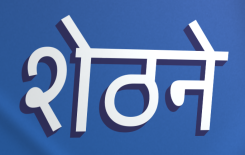
शेठने